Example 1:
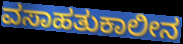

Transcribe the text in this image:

ವಸಾಹತುಕಾಲೀನ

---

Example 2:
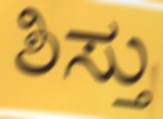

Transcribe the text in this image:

ಶಿಸ್ತು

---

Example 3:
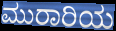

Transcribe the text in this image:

ಮುರಾರಿಯ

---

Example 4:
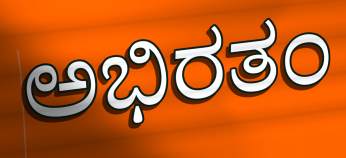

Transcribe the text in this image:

ಅಭಿರತಂ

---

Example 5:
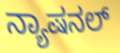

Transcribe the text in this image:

ನ್ಯಾಷನಲ್